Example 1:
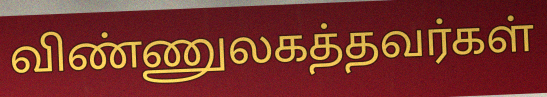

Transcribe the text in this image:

விண்ணுலகத்தவர்கள்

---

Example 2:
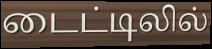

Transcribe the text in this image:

டைட்டிலில்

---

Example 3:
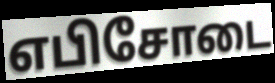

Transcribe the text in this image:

எபிசோடை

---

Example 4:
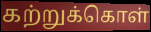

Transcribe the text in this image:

கற்றுக்கொள்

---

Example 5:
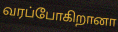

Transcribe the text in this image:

வரப்போகிறானா